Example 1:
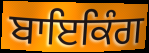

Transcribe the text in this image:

ਬਾਇਕਿੰਗ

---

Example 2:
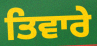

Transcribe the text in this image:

ਤਿਵਾਰੇ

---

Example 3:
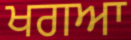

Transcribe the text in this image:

ਖਗਆ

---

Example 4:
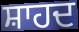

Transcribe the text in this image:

ਸ਼ਾਹਦ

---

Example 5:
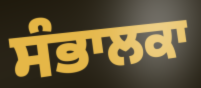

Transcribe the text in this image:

ਸੰਭਾਲਕਾ